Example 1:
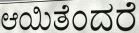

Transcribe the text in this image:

ಆಯಿತೆಂದರೆ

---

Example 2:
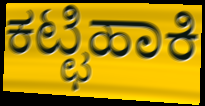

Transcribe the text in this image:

ಕಟ್ಟಿಹಾಕಿ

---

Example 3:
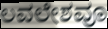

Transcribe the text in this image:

ಲವಲೇಶವೂ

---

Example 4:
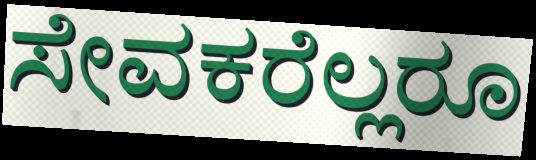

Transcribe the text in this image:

ಸೇವಕರೆಲ್ಲರೂ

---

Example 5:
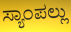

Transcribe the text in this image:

ಸ್ಯಾಂಪಲ್ಲು